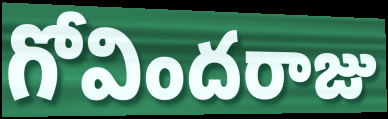
గోవిందరాజు